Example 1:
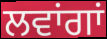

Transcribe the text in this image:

ਲਵਾਂਗਾਂ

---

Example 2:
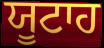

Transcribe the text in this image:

ਯੂਟਾਹ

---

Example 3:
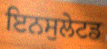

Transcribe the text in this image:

ਇਨਸੁਲੇਟਡ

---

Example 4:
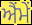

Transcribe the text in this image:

ਐਂਮੇਂ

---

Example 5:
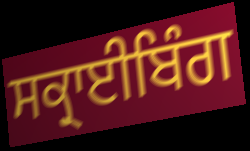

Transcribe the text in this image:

ਸਕ੍ਰਾਈਬਿੰਗ